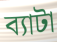
ব্যাটা